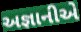
અજ્ઞાનીએ